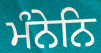
ਮੰਨੇਨਿ